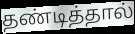
தண்டித்தால்